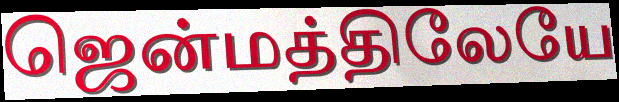
ஜென்மத்திலேயே